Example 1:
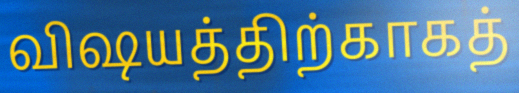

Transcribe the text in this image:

விஷயத்திற்காகத்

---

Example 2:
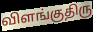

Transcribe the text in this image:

விளங்குதிரு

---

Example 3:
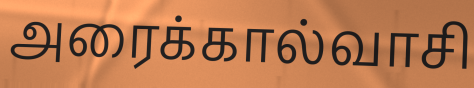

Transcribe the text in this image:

அரைக்கால்வாசி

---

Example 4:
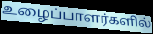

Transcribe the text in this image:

உழைப்பாளர்களில்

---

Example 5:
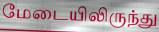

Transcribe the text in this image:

மேடையிலிருந்து